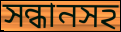
সন্ধানসহ